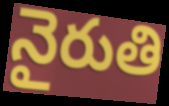
నైరుతి